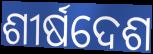
ଶୀର୍ଷଦେଶ